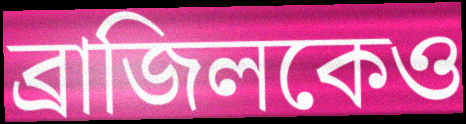
ব্রাজিলকেও